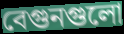
বেগুনগুলো